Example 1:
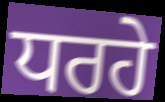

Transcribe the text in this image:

ਧਰਹੇ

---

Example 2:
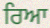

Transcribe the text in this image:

ਰਿਆ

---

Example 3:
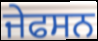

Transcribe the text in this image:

ਜੇਫਸਨ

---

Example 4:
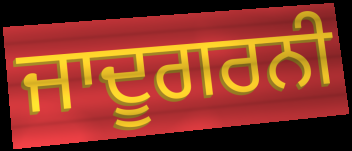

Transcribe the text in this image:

ਜਾਦੂਗਰਨੀ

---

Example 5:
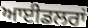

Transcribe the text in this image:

ਆਈਡਲਰਾਂ